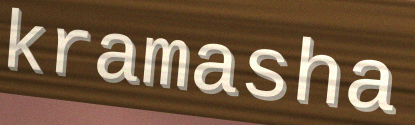
kramasha